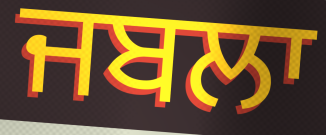
ਜਬਲਾ